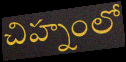
చిహ్నంలో